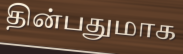
தின்பதுமாக